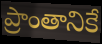
ప్రాంతానికే